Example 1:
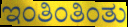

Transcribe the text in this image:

ಇಂತಿಂತಿಂತು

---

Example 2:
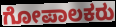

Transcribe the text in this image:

ಗೋಪಾಲಕರು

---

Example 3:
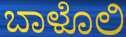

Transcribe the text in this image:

ಬಾಳೊಲಿ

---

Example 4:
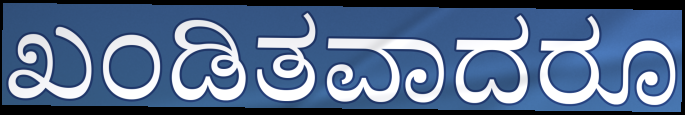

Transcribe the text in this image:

ಖಂಡಿತವಾದರೂ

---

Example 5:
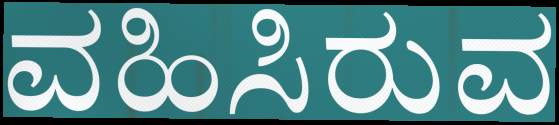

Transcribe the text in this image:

ವಹಿಸಿರುವ